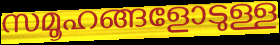
സമൂഹങ്ങളോടുള്ള